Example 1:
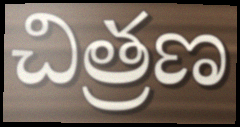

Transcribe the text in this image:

చిత్రణ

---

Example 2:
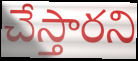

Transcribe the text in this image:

చేస్తారని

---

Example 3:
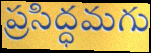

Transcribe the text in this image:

ప్రసిద్ధమగు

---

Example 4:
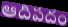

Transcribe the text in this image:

ఆదిపదం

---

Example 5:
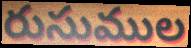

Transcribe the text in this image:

రుసుముల